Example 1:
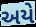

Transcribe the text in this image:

અયે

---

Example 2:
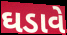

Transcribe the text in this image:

ઘડાવે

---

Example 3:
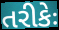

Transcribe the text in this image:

તરીકેઃ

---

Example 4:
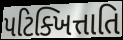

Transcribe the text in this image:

પટિક્ખિત્તાતિ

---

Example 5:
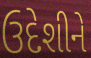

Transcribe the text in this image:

ઉદેશીને